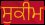
ਸੁਕੀਮ